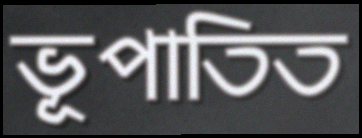
ভূপাতিত